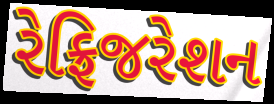
રેફ્રિજરેશન